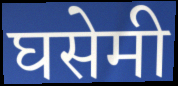
घसेमी